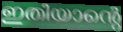
ഇതിയാന്റെ